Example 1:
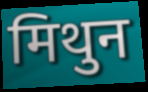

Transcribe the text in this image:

मिथुन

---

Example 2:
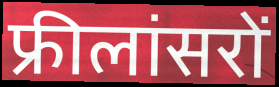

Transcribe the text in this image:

फ्रीलांसरों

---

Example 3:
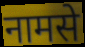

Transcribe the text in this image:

नामसे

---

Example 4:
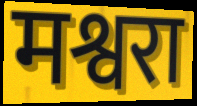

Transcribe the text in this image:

मश्वरा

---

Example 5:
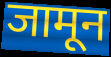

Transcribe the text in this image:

जामून